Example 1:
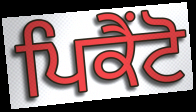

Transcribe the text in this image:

ਪਿਕੈਂਟੋ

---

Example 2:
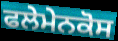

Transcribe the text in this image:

ਫਲੇਮੇਨਕੋਸ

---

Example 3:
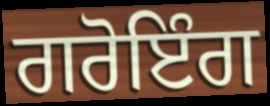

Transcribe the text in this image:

ਗਰੋਇੰਗ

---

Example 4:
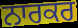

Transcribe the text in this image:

ਨਾਰਕਰ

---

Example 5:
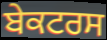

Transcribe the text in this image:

ਬੇਕਟਰਸ